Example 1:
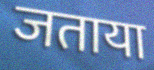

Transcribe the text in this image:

जताया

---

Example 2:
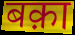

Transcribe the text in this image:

बक़ा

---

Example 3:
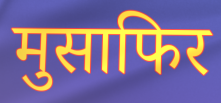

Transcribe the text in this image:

मुसाफिर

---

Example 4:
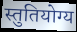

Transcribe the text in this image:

स्तुतियोग्य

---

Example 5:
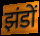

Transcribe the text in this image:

झंडों